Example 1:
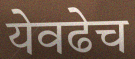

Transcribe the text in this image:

येवढेच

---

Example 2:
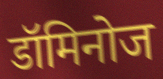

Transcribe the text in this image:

डॉमिनोज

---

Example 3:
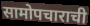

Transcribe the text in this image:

सामोपचाराची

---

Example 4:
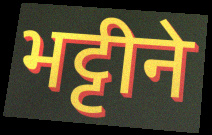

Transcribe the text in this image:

भट्टीने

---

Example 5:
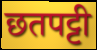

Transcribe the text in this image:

छतपट्टी